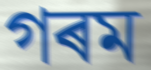
গৰম